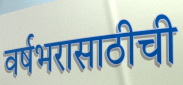
वर्षभरासाठीची